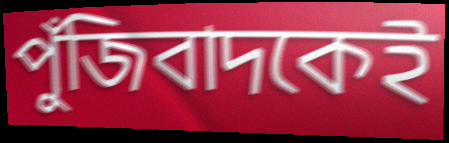
পুঁজিবাদকেই